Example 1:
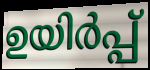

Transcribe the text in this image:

ഉയിർപ്പ്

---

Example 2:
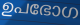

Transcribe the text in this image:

ഉപഭോഗ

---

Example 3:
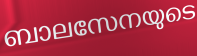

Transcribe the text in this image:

ബാലസേനയുടെ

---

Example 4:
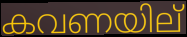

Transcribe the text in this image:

കവണയില്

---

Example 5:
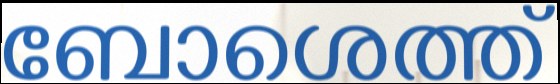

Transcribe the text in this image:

ബോശെത്ത്